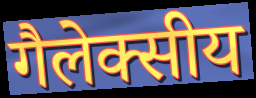
गैलेक्सीय